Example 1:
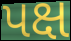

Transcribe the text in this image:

પક્ષ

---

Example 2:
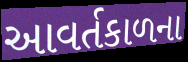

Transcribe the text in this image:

આવર્તકાળના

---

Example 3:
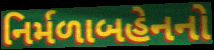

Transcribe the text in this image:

નિર્મળાબહેનનો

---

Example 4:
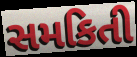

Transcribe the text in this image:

સમકિતી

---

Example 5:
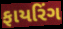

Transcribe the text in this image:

ફાયરિંગ